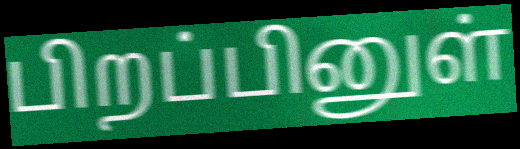
பிறப்பினுள்